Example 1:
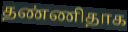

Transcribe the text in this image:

தண்ணிதாக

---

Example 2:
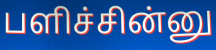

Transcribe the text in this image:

பளிச்சின்னு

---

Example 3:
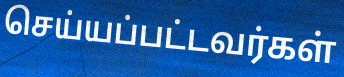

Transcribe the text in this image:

செய்யப்பட்டவர்கள்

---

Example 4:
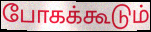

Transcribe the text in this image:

போகக்கூடும்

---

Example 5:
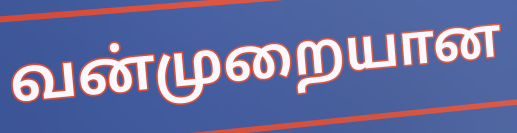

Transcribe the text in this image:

வன்முறையான